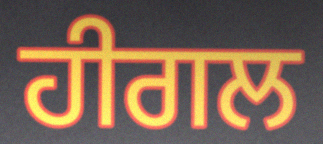
ਹੀਗਲ